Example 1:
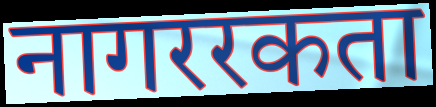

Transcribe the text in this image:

नागररकता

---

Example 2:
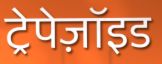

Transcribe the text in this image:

ट्रेपेज़ॉइड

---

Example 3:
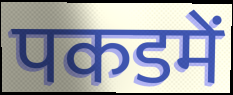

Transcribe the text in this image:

पकडमें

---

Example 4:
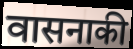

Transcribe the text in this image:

वासनाकी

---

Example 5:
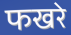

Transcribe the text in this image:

फखरे